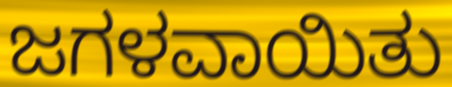
ಜಗಳವಾಯಿತು